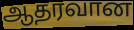
ஆதரவான